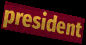
president